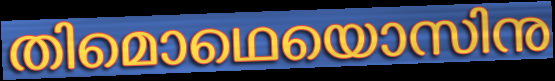
തിമൊഥെയൊസിനു